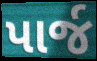
પાર્જ